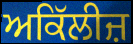
ਅਕਿੱਲੀਜ਼